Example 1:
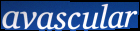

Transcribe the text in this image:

avascular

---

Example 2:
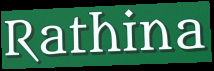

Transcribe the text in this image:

Rathina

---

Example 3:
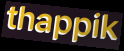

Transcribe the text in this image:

thappik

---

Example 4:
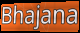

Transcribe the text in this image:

Bhajana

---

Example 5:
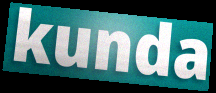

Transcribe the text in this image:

kunda